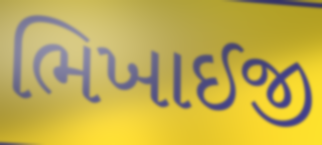
ભિખાઈજી